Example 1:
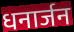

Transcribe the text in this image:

धनार्जन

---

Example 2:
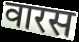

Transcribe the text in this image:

वारस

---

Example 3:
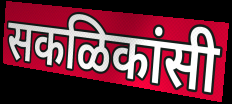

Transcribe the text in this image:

सकळिकांसी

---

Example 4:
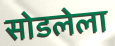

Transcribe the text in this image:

सोडलेला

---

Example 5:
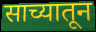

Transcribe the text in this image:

साच्यातून